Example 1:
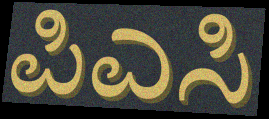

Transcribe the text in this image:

ಪಿಎಸಿ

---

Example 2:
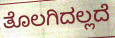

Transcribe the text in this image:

ತೊಲಗಿದಲ್ಲದೆ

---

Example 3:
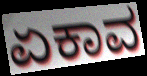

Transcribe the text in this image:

ಏಕಾವ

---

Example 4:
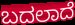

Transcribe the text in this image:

ಬದಲಾದೆ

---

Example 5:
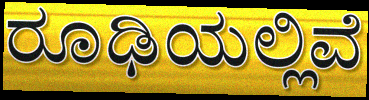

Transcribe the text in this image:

ರೂಢಿಯಲ್ಲಿವೆ